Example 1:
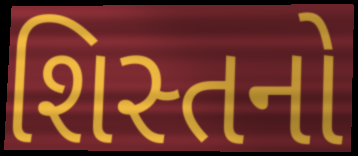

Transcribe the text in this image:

શિસ્તનો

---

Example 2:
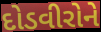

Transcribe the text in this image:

દોડવીરોને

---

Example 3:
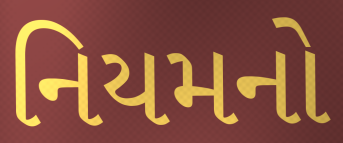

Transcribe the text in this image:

નિયમનો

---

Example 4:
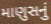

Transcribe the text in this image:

માણુસનું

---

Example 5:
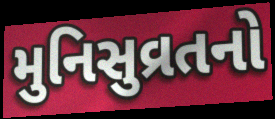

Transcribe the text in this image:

મુનિસુવ્રતનો